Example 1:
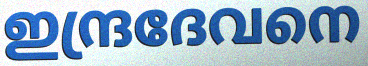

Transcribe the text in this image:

ഇന്ദ്രദേവനെ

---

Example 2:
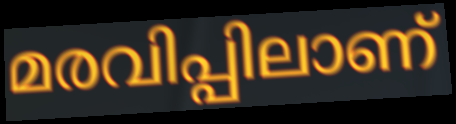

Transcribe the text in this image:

മരവിപ്പിലാണ്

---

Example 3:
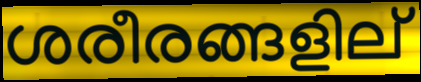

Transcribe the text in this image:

ശരീരങ്ങളില്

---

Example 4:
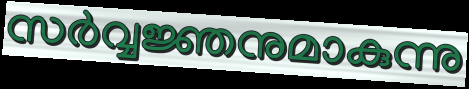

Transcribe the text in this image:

സർവ്വജ്ഞനുമാകുന്നു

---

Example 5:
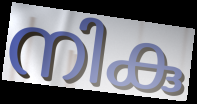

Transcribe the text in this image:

നികു